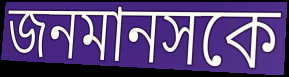
জনমানসকে